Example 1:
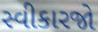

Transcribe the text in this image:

સ્વીકારજો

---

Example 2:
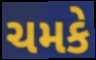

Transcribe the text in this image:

ચમકે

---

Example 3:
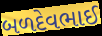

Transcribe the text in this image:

બળદેવભાઈ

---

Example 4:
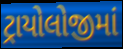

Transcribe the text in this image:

ટ્રાયોલોજીમાં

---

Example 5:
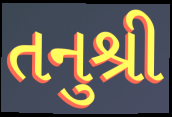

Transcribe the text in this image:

તનુશ્રી